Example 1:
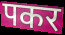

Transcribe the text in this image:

पकर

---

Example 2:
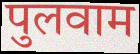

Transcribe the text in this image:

पुलवाम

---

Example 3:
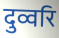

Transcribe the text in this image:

दुव्वरि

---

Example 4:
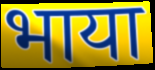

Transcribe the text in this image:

भाया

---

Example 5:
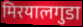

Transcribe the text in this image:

मिरयालगुडा